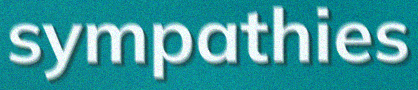
sympathies